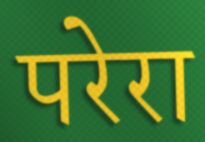
परेरा